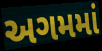
અગમમાં